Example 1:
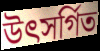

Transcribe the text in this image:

উৎসর্গিত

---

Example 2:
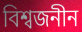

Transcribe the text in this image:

বিশ্বজনীন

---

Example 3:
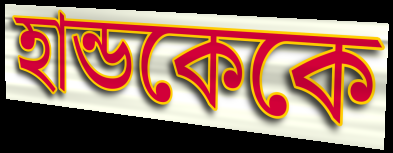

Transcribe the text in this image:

হান্ডকেকে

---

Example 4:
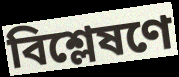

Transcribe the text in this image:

বিশ্লেষণে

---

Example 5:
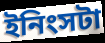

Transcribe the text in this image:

ইনিংসটা